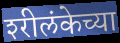
श्रीलंकेच्या